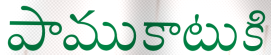
పాముకాటుకి